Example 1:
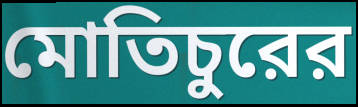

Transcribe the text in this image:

মোতিচুরের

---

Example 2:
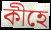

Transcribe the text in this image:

কীহে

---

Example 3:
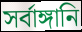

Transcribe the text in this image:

সর্বাঙ্গানি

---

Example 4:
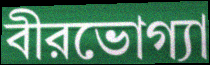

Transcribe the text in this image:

বীরভোগ্যা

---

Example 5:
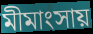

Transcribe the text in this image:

মীমাংসায়